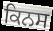
ਕਿਨਸ